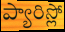
ప్యారిస్లో